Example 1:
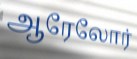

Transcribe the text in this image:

ஆரேலோர்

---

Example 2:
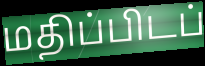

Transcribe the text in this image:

மதிப்பிடப்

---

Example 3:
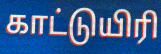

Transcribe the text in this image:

காட்டுயிரி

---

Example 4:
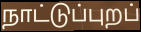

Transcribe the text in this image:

நாட்டுப்புறப்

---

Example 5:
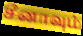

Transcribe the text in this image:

சீனாவும்